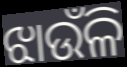
ଝାଉଁଳି